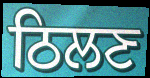
ਠਿਲਣ